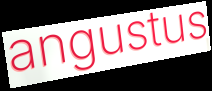
angustus